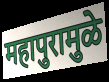
महापुरामुळे